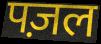
पज़ल